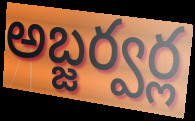
అబ్జర్వర్ల